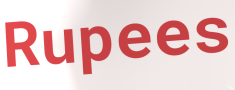
Rupees